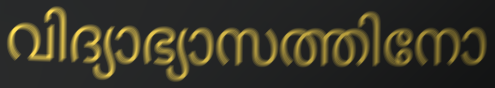
വിദ്യാഭ്യാസത്തിനോ